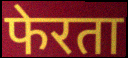
फेरता